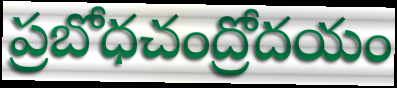
ప్రబోధచంద్రోదయం